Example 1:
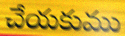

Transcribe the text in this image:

చేయకుము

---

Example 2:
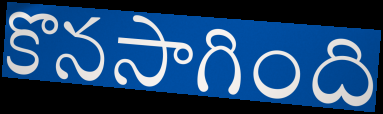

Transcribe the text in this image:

కొనసాగింది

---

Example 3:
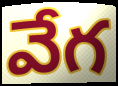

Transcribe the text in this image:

వేగ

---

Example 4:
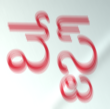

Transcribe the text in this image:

వేస్ట్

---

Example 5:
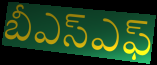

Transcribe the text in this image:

బీఎస్ఎఫ్